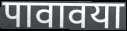
पावावया